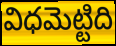
విధమెట్టిది